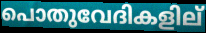
പൊതുവേദികളില്